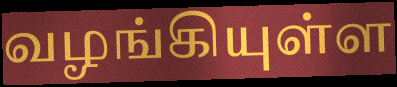
வழங்கியுள்ள